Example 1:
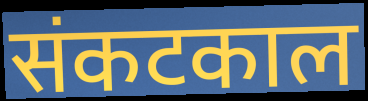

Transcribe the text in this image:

संकटकाल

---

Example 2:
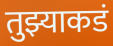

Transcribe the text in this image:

तुझ्याकडं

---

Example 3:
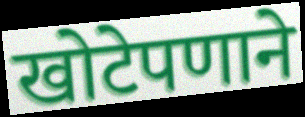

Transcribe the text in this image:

खोटेपणाने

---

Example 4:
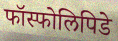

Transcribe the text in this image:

फॉस्फोलिपिडे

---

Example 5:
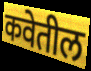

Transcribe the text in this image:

कवेतील